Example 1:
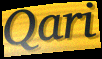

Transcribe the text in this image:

Qari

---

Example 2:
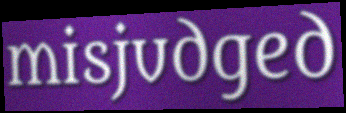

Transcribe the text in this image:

misjudged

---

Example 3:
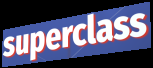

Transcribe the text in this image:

superclass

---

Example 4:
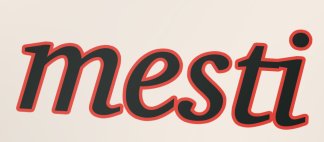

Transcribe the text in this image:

mesti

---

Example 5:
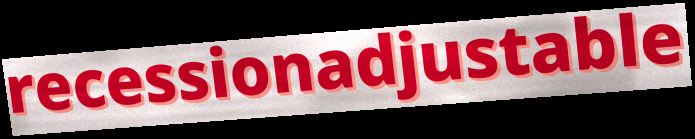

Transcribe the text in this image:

recessionadjustable